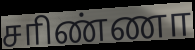
சரிண்ணா